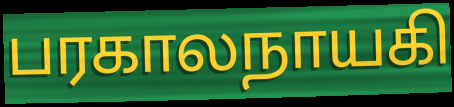
பரகாலநாயகி